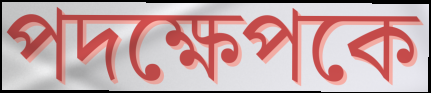
পদক্ষেপকে